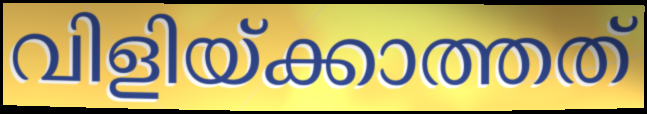
വിളിയ്ക്കാത്തത്